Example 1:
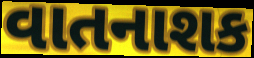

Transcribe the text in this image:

વાતનાશક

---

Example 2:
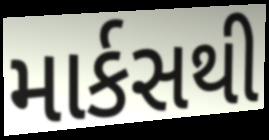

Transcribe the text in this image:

માર્કસથી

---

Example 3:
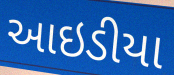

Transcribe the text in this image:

આઇડીયા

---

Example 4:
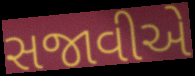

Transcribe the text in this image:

સજાવીએ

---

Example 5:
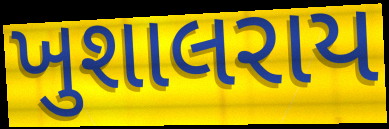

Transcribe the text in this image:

ખુશાલરાય